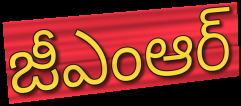
జీఎంఆర్